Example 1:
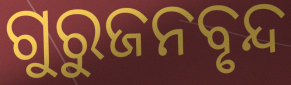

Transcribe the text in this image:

ଗୁରୁଜନବୃନ୍ଦ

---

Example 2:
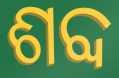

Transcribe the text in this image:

ଶବ୍ଦ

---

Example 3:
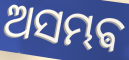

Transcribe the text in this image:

ଅସମ୍ଭଵ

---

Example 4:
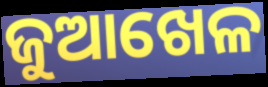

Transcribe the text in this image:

ଜୁଆଖେଳ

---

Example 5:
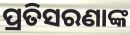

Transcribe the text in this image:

ପ୍ରତିସରଣାଙ୍କ